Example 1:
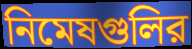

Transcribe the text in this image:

নিমেষগুলির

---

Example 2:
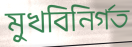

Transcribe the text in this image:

মুখবিনির্গত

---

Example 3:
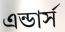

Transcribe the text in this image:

এন্ডার্স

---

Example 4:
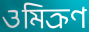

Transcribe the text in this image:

ওমিক্রণ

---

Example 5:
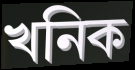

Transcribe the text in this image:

খনিক